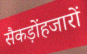
सैकड़ोंहजारों